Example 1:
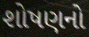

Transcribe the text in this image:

શોષણનો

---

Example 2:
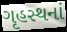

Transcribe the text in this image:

ગૃહસ્થનાં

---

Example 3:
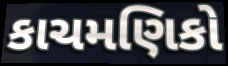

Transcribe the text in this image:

કાચમણિકો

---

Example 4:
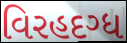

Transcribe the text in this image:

વિરહદગ્ધ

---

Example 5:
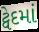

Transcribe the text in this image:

ટ્વેદમાં